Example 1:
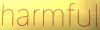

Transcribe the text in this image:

harmful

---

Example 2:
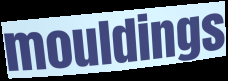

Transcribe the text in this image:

mouldings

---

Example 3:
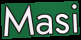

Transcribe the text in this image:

Masi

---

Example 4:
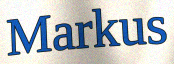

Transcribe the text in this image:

Markus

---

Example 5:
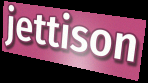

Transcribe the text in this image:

jettison